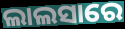
ଲାଲସାରେ